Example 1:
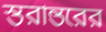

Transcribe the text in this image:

স্তরান্তরের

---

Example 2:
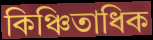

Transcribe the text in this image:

কিঞ্চিতাধিক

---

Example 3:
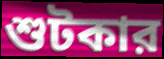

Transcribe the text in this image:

শুটকার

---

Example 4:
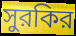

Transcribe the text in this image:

সুরকির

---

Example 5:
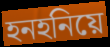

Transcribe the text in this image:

হনহনিয়ে